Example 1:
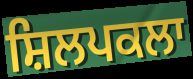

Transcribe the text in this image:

ਸ਼ਿਲਪਕਲਾ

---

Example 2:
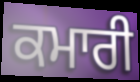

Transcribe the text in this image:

ਕਮਾਰੀ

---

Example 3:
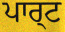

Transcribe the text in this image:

ਪਾਰ੍ਟ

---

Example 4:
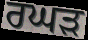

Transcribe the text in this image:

ਰਘੜ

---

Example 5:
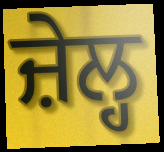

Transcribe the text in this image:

ਜ਼ੇਲ੍ਹ